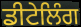
ਡੀਟੇਲਿੰਗ